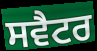
ਸਵੈਟਰ